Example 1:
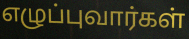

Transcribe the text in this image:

எழுப்புவார்கள்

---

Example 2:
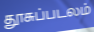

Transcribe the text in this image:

தூசுப்படலம்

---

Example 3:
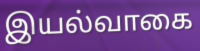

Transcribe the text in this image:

இயல்வாகை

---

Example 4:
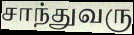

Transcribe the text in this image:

சாந்துவரு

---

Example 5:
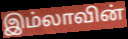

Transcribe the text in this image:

இம்லாவின்